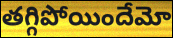
తగ్గిపోయిందేమో